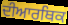
ਦੀਆਰਥਿਕ